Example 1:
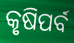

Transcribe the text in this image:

କୃଷିପର୍ବ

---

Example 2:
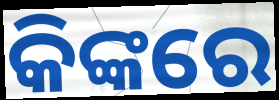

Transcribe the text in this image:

କିଙ୍କରେ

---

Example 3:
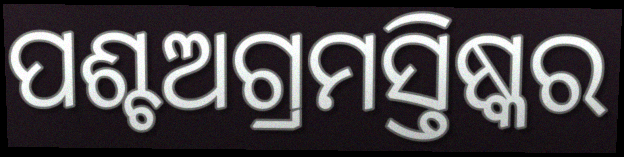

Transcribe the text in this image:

ପଶ୍ଚଅଗ୍ରମସ୍ତିଷ୍କର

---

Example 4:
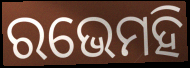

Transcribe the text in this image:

ରଭେମହି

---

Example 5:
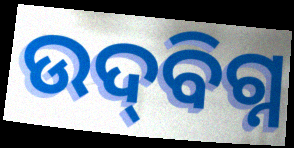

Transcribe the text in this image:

ଉଦ୍‌ବିଗ୍ନ